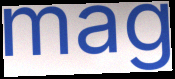
mag